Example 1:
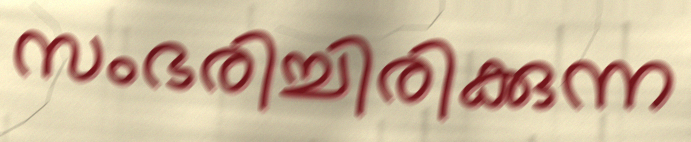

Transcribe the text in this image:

സംഭരിച്ചിരിക്കുന്ന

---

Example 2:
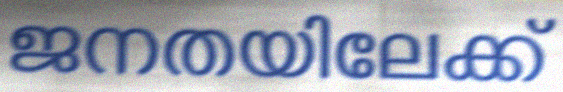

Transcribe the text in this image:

ജനതയിലേക്ക്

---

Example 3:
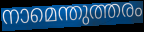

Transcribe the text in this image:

നാമെന്തുത്തരം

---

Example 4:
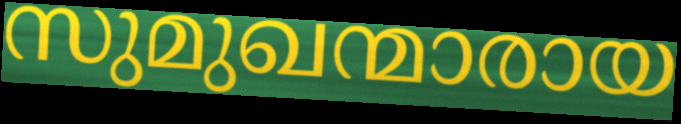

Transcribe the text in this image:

സുമുഖന്മാരായ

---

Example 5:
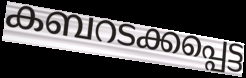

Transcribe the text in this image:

കബറടക്കപ്പെട്ട